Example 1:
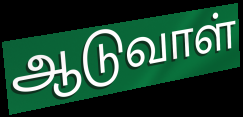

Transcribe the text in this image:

ஆடுவாள்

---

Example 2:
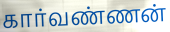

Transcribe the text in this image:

கார்வண்ணன்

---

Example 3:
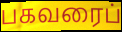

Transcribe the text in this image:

பகவரைப்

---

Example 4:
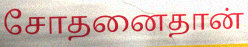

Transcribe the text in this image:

சோதனைதான்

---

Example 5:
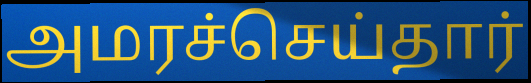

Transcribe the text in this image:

அமரச்செய்தார்